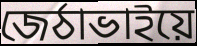
জেঠাভাইয়ে